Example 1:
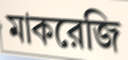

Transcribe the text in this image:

মাকরেজি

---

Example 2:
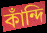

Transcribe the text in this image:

কাঁন্দি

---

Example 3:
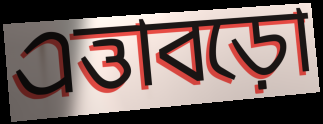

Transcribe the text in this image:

এত্তাবড়ো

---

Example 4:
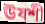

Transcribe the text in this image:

ঊষশী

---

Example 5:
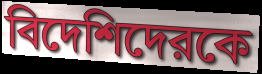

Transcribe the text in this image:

বিদেশিদেরকে